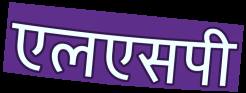
एलएसपी